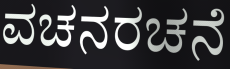
ವಚನರಚನೆ